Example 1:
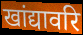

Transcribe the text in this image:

खांद्यावरि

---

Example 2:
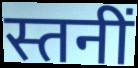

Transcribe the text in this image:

स्तनीं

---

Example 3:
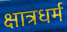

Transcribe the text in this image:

क्षात्रधर्म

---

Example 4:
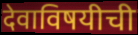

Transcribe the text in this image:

देवाविषयीची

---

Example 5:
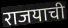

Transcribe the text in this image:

राजयाची